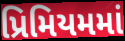
પ્રિમિયમમાં